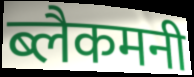
ब्लैकमनी